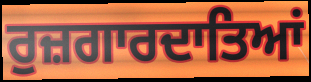
ਰੁਜ਼ਗਾਰਦਾਤਿਆਂ